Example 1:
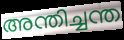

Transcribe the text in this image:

അന്തിച്ചന്ത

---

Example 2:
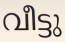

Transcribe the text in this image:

വീട്ടു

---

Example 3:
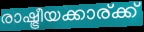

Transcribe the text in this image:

രാഷ്ട്രീയക്കാര്ക്ക്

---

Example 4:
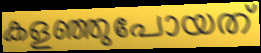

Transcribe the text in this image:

കളഞ്ഞുപോയത്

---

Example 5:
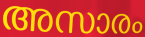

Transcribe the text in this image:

അസാരം